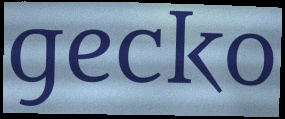
gecko